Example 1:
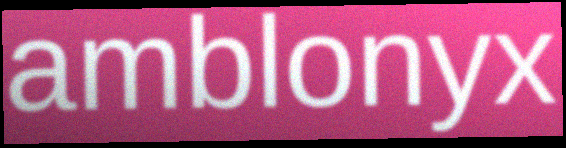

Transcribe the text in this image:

amblonyx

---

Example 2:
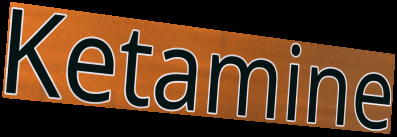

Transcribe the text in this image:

Ketamine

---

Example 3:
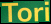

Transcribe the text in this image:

Tori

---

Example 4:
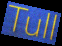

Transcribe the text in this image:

Tull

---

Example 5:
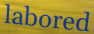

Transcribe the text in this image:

labored